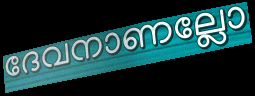
ദേവനാണല്ലോ